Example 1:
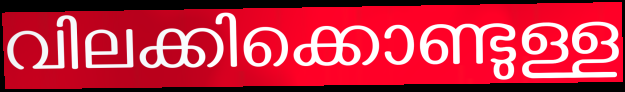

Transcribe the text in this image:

വിലക്കിക്കൊണ്ടുള്ള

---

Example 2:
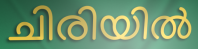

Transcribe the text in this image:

ചിരിയിൽ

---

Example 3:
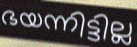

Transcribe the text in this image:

ഭയന്നിട്ടില്ല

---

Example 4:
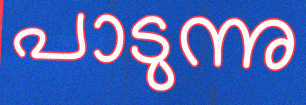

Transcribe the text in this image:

പാടുന്നു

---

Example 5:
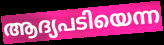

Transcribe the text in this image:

ആദ്യപടിയെന്ന